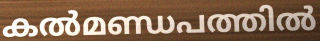
കൽമണ്ഡപത്തിൽ